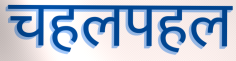
चहलपहल